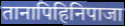
तानापिहिनिपाजा